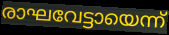
രാഘവേട്ടായെന്ന്